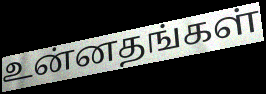
உன்னதங்கள்